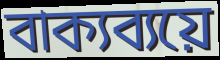
বাক্যব্যয়ে